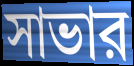
সাভার